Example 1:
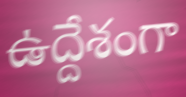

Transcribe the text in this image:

ఉద్దేశంగా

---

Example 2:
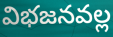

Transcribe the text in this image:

విభజనవల్ల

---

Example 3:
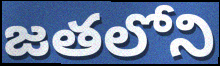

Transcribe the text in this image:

జతలోని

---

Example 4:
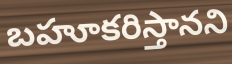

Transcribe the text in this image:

బహూకరిస్తానని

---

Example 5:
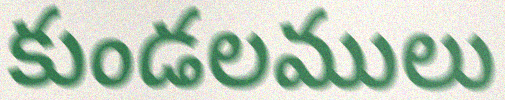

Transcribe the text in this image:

కుండలములు